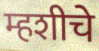
म्हशीचे